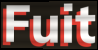
Fuit